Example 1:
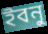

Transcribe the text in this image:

ইবনু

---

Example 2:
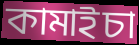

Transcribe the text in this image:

কামাইচা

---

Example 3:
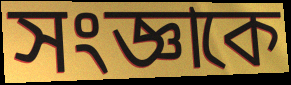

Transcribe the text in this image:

সংজ্ঞাকে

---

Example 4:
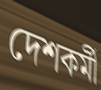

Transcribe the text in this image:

দেশকর্মী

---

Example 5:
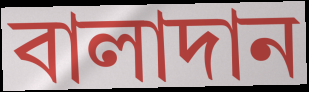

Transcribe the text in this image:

বালাদান